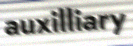
auxilliary